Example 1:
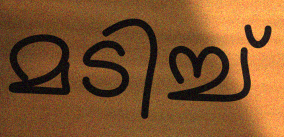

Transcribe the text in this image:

മടിച്ച്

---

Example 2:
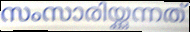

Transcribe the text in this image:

സംസാരിയ്ക്കുന്നത്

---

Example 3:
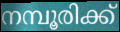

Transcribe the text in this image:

നമ്പൂരിക്ക്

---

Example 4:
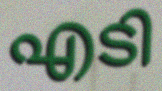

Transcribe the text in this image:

എടി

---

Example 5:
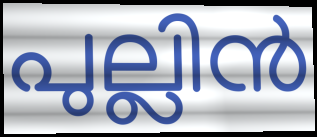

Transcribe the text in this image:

പുല്ലിൻ